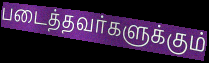
படைத்தவர்களுக்கும்